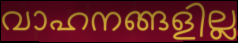
വാഹനങ്ങളില്ല